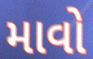
માવો